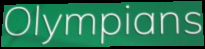
Olympians